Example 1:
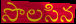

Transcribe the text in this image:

సొలసిన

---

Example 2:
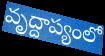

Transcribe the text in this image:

వృద్దాప్యంలో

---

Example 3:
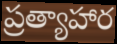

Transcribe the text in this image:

ప్రత్యాహార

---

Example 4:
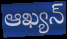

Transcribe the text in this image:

ఆఖ్యన్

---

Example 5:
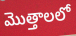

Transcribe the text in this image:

మొత్తాలలో